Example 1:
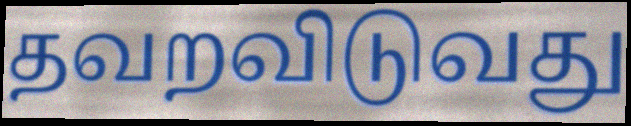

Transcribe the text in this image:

தவறவிடுவது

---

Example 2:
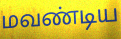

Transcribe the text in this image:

மவண்டிய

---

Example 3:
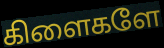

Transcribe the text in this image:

கிளைகளே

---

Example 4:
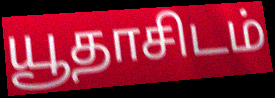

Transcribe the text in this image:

யூதாசிடம்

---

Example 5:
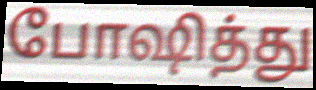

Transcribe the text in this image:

போஷித்து